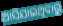
ଆସିଯାଇଥିବାରୁ